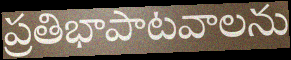
ప్రతిభాపాటవాలను